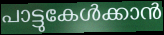
പാട്ടുകേൾക്കാൻ